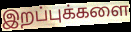
இறப்புக்களை